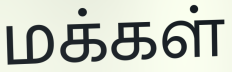
மக்கள்